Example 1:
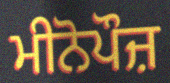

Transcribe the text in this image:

ਮੀਨੋਪੌਜ਼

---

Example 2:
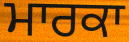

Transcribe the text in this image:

ਮਾਰਕਾ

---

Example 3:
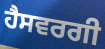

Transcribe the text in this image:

ਹੈਸਵਰਗੀ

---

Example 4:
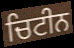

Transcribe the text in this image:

ਚਿਟੀਨ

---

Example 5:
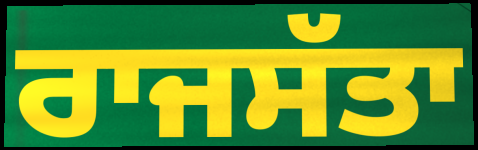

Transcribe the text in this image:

ਰਾਜਸੱਤਾ